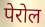
पेरोल